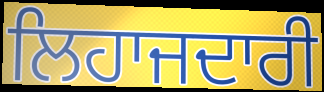
ਲਿਹਾਜਦਾਰੀ